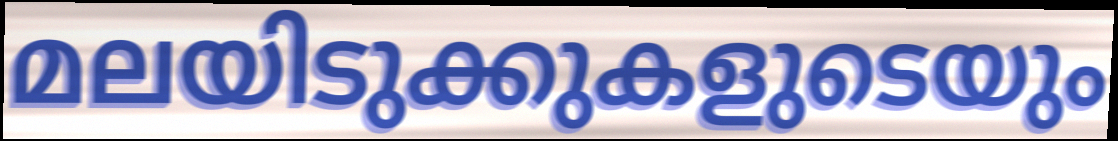
മലയിടുക്കുകളുടെയും